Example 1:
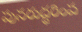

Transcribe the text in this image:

పునరుద్ధరింప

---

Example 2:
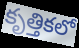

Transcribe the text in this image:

కృత్తికలో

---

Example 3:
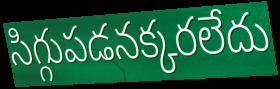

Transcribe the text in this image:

సిగ్గుపడనక్కరలేదు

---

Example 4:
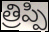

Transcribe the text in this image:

త్రిప్పి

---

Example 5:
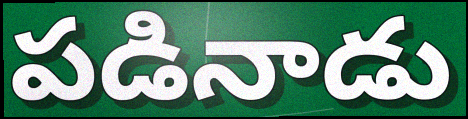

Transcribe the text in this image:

పడినాడు